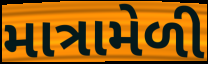
માત્રામેળી